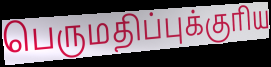
பெருமதிப்புக்குரிய